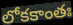
లోకకాంతః